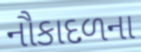
નૌકાદળના